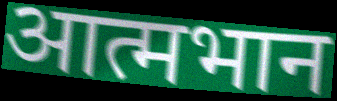
आत्मभान